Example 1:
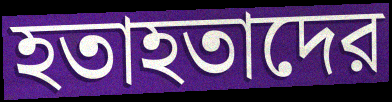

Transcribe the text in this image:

হতাহতাদের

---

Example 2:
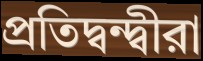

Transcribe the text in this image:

প্রতিদ্বন্দ্বীরা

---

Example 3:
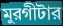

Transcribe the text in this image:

মুরগীটার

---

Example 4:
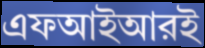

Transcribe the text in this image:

এফআইআরই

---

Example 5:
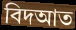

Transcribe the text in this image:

বিদআত